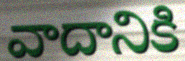
వాదానికి